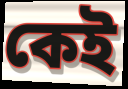
কেই